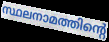
സ്ഥലനാമത്തിന്റെ